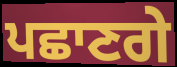
ਪਛਾਣਗੇ